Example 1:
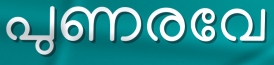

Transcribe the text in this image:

പുണരവേ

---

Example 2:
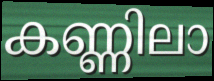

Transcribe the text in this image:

കണ്ണിലാ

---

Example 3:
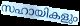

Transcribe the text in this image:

സഹായികളും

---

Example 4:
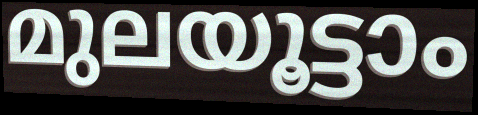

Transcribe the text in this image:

മുലയൂട്ടാം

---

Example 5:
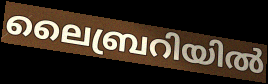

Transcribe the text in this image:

ലൈബ്രറിയിൽ